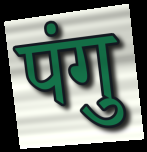
पंगु